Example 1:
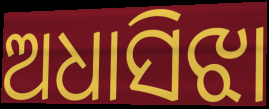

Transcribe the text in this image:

ଅଧାସିଝା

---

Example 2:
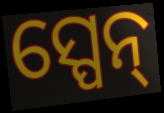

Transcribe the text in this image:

ସ୍ପେନ୍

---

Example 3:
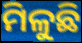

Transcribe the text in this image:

ମିଳୁଛି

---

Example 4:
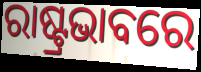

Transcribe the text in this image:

ରାଷ୍ଟ୍ରଭାବରେ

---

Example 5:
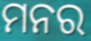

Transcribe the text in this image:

ମନର